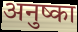
अनुष्का